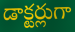
డాక్టర్లుగా